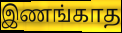
இணங்காத